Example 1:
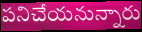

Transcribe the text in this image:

పనిచేయనున్నారు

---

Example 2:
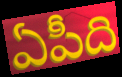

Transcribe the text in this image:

ఏపీది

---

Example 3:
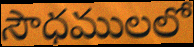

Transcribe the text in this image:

సౌధములలో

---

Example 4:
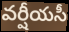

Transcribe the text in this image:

వర్షీయసీ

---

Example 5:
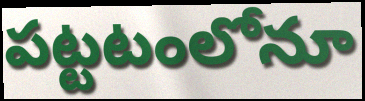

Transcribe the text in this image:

పట్టటంలోనూ